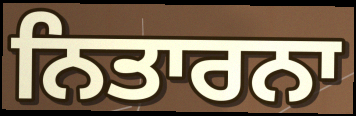
ਨਿਤਾਰਨਾ